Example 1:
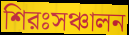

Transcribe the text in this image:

শিরঃসঞ্চালন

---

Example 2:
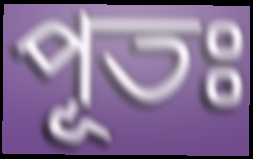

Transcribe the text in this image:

পূতঃ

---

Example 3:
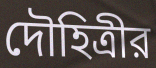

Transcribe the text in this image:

দৌহিত্রীর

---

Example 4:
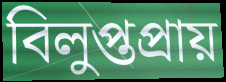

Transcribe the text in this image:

বিলুপ্তপ্রায়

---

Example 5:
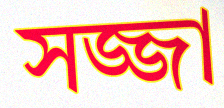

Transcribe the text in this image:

সজ্জা